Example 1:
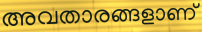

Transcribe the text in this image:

അവതാരങ്ങളാണ്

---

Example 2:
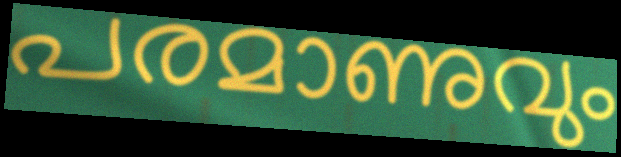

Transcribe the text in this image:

പരമാണുവും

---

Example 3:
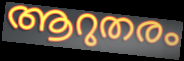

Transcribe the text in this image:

ആറുതരം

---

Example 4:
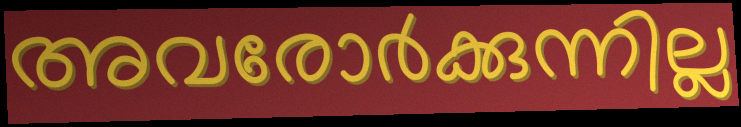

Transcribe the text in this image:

അവരോർക്കുന്നില്ല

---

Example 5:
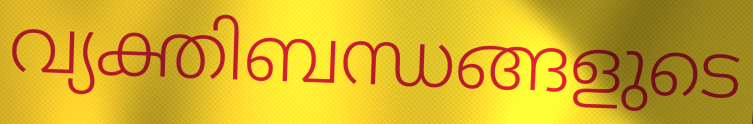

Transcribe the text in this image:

വ്യക്തിബന്ധങ്ങളുടെ